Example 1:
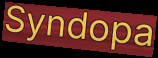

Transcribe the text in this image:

Syndopa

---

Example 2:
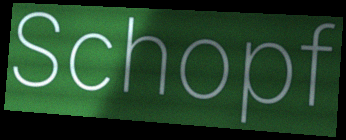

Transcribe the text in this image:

Schopf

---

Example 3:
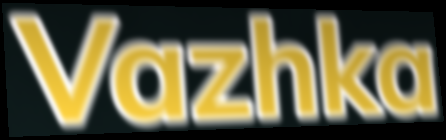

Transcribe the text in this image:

Vazhka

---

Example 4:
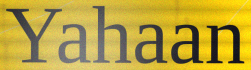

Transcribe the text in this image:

Yahaan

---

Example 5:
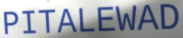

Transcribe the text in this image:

PITALEWAD